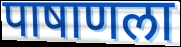
पाषाणला